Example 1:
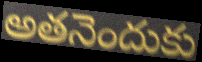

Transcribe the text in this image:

అతనెందుకు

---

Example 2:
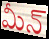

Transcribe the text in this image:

మీన్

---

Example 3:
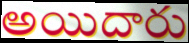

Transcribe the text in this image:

అయిదారు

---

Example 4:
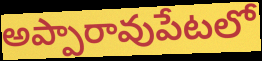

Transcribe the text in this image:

అప్పారావుపేటలో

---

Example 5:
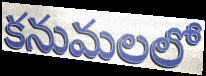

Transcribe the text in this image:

కనుమలలో